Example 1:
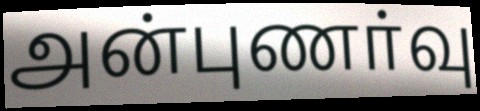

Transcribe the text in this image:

அன்புணர்வு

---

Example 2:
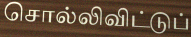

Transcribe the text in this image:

சொல்லிவிட்டுப்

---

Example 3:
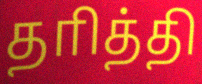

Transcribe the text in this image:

தரித்தி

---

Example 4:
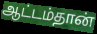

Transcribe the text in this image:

ஆட்டம்தான்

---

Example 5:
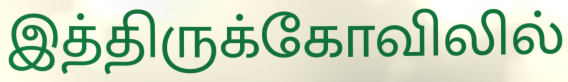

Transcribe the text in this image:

இத்திருக்கோவிலில்